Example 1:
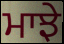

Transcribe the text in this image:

ਮਾਝੇ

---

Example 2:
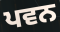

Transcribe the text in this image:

ਪਵਨ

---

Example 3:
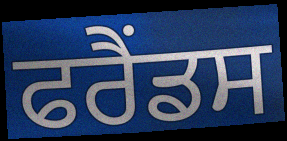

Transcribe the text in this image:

ਫਰੈਂਡਸ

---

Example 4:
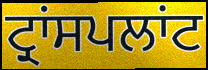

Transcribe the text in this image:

ਟ੍ਰਾਂਸਪਲਾਂਟ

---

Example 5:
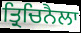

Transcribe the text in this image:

ਤ੍ਰਿਚਿਨੈਲਾ